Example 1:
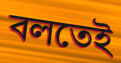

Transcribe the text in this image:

বলতেই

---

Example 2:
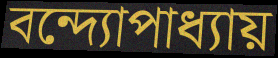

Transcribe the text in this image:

বন্দ্যোপাধ্যায়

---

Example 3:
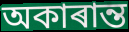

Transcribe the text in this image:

অকাৰান্ত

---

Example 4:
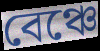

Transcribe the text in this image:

বেঞ্চে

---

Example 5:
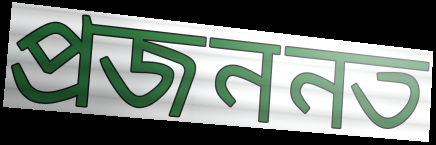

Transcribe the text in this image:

প্ৰজননত